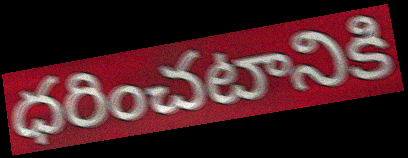
ధరించటానికి